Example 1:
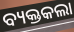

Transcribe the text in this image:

ବ୍ୟକ୍ତକଲା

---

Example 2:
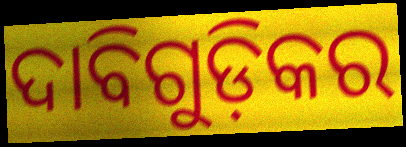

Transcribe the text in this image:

ଦାବିଗୁଡ଼ିକର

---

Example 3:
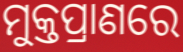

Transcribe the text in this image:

ମୁକ୍ତପ୍ରାଣରେ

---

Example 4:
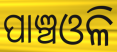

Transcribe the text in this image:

ପାଞ୍ଚଓଳି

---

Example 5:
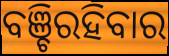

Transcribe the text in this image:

ବଞ୍ଚିରହିବାର